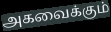
அகவைக்கும்